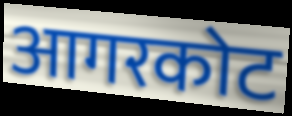
आगरकोट